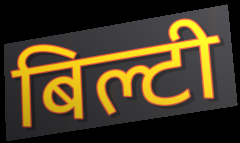
बिल्टी